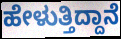
ಹೇಳುತ್ತಿದ್ದಾನೆ